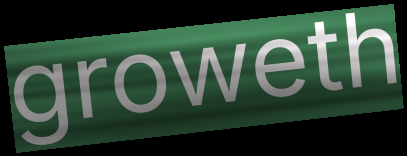
groweth